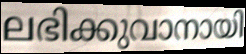
ലഭിക്കുവാനായി